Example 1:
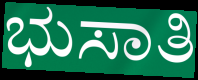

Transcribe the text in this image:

ಭುಸಾತಿ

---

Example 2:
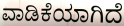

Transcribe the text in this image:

ವಾಡಿಕೆಯಾಗಿದೆ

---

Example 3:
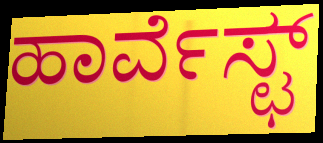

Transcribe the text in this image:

ಹಾರ್ವೆಸ್ಟ್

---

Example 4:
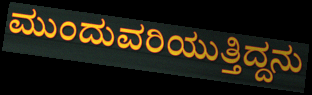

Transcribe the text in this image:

ಮುಂದುವರಿಯುತ್ತಿದ್ದನು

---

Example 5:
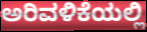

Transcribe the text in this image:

ಅರಿವಳಿಕೆಯಲ್ಲಿ